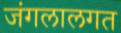
जंगलालगत